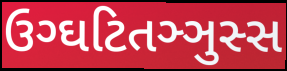
ઉગ્ઘટિતઞ્ઞુસ્સ